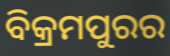
ବିକ୍ରମପୁରର